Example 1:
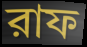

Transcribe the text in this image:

রাফ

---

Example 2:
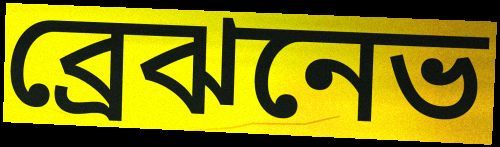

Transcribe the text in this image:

ব্রেঝনেভ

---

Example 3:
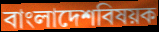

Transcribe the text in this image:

বাংলাদেশবিষয়ক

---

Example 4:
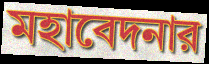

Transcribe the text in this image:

মহাবেদনার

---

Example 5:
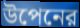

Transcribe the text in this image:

উপেনের